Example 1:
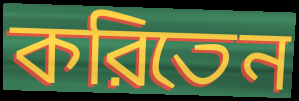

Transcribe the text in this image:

করিতেন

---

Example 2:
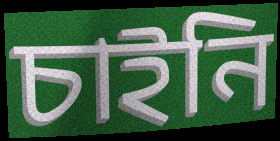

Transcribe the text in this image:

চাইনি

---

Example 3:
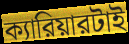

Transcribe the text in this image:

ক্যারিয়ারটাই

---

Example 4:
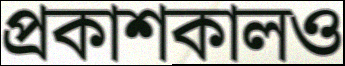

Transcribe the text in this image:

প্রকাশকালও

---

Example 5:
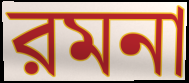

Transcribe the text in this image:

রমনা